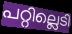
പറ്റില്ലെടി